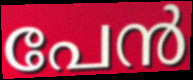
പേൻ